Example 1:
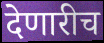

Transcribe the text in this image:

देणारीच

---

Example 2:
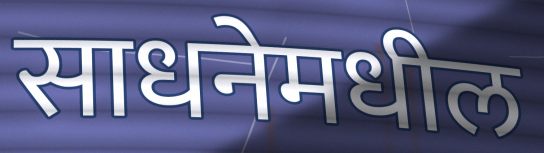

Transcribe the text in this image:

साधनेमधील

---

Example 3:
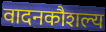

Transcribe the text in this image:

वादनकौशल्य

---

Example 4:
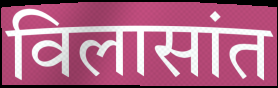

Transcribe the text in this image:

विलासांत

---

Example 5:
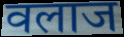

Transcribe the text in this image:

वलाज